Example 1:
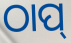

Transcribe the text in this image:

ଠାପ୍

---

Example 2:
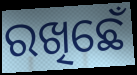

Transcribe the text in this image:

ରଖିଛେଁ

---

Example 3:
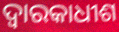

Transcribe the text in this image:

ଦ୍ୱାରକାଧୀଶ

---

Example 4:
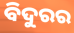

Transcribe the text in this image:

ବିଦୁରର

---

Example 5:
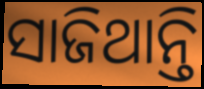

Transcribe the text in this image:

ସାଜିଥାନ୍ତି